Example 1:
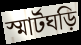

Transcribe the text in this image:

স্মার্টঘড়ি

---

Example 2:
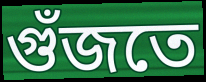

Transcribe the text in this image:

গুঁজতে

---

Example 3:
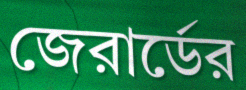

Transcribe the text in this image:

জেরার্ডের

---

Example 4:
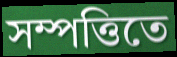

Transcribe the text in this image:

সম্পত্তিতে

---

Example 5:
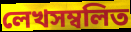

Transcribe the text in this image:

লেখসম্বলিত